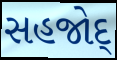
સહજોદ્